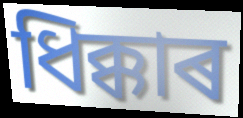
ধিক্কাৰ